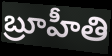
బ్రూహీతి